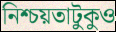
নিশ্চয়তাটুকুও